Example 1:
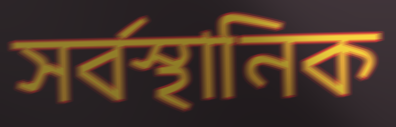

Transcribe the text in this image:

সর্বস্থানিক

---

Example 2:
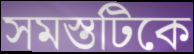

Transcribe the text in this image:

সমস্তটিকে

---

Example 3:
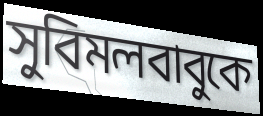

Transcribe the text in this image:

সুবিমলবাবুকে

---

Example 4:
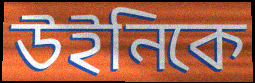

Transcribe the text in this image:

উইনিকে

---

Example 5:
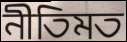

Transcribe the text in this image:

নীতিমত